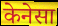
केनेसा